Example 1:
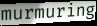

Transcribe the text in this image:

murmuring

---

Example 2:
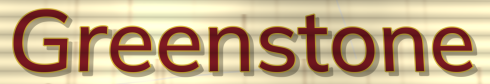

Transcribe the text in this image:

Greenstone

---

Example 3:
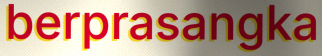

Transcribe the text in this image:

berprasangka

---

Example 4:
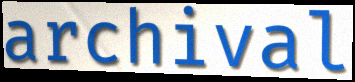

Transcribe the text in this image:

archival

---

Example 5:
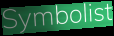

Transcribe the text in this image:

Symbolist